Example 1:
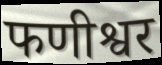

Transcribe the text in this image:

फणीश्वर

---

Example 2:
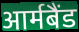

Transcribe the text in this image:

आर्मबैंड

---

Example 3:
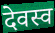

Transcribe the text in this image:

देवस्व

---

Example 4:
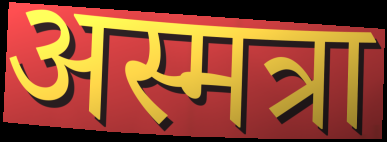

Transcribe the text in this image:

अस्मत्रा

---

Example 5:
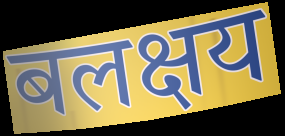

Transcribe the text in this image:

बलक्षय